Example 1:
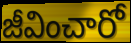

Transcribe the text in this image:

జీవించారో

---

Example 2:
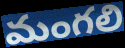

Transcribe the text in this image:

మంగలి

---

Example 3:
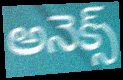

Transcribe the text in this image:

అనెక్స్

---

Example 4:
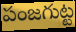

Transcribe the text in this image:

పంజగుట్ట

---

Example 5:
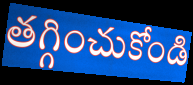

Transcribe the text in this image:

తగ్గించుకోండి